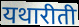
यथारीती